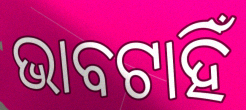
ଭାବଟାହିଁ